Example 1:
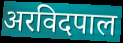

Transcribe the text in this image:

अरविदपाल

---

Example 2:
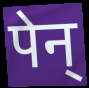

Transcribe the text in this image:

पेन्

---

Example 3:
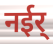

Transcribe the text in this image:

नईर्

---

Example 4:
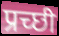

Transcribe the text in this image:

प्रच्छी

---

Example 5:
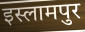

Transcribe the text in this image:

इस्लामपुर